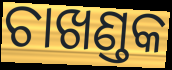
ଚାଖଣ୍ଡକ